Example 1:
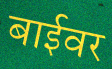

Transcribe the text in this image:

बाईवर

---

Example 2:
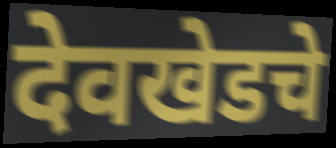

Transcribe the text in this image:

देवखेडचे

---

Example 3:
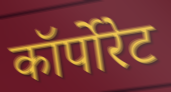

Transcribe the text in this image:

कॉर्पोरेट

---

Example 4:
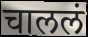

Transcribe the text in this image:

चाललं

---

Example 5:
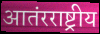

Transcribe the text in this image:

आतंरराष्ट्रीय